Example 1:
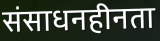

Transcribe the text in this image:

संसाधनहीनता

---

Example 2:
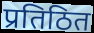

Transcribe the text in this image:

प्रतिठित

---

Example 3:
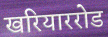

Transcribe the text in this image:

खरियाररोड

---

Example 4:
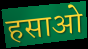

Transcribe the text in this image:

हसाओ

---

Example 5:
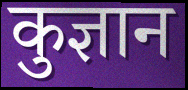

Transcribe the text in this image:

कुज्ञान